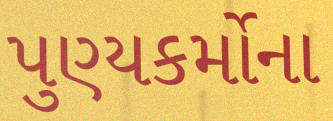
પુણ્યકર્મોના